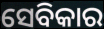
ସେବିକାର